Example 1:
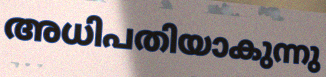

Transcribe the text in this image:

അധിപതിയാകുന്നു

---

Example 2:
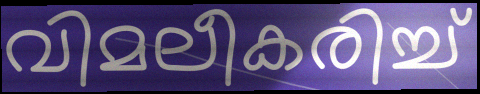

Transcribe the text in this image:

വിമലീകരിച്ച്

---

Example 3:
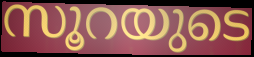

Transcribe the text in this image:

സൂറയുടെ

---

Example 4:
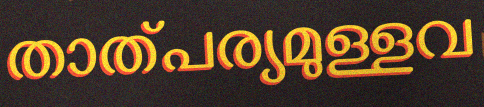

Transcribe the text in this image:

താത്പര്യമുള്ളവ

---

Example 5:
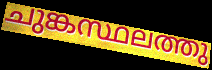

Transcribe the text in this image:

ചുങ്കസ്ഥലത്തു